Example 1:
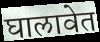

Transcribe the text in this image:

घालावेत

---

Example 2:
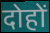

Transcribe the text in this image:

दोहों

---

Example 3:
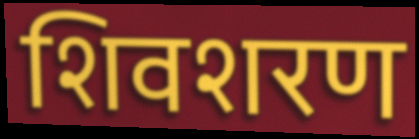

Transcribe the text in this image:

शिवशरण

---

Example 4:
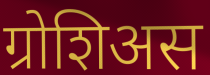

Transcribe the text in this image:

ग्रोशिअस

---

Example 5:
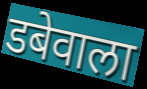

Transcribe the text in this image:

डबेवाला